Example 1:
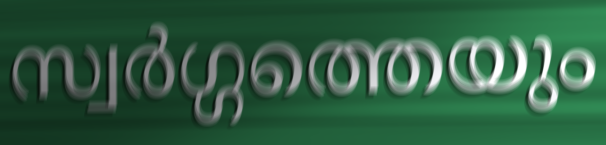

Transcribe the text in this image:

സ്വർഗ്ഗത്തെയും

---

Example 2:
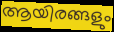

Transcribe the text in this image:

ആയിരങ്ങളും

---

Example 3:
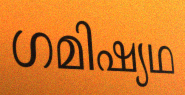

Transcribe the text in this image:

ഗമിഷ്യഥ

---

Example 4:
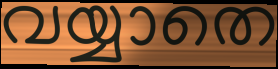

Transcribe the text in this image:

വയ്യാതെ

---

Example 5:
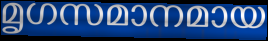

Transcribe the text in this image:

മൃഗസമാനമായ